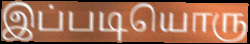
இப்படியொரு